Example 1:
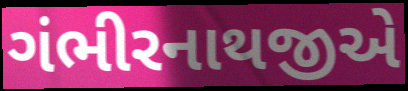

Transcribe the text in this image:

ગંભીરનાથજીએ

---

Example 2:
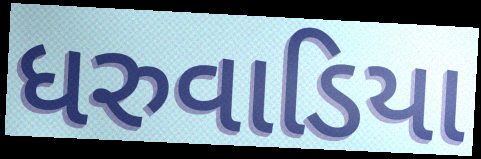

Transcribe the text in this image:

ધરુવાડિયા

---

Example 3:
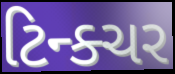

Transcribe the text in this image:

ટિન્ક્ચર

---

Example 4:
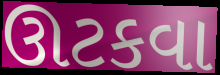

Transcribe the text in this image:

ઊટકવા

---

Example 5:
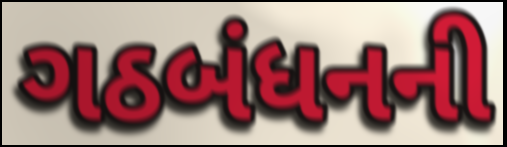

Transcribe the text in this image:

ગઠબંધનની